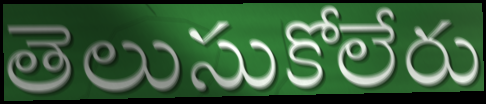
తెలుసుకోలేరు